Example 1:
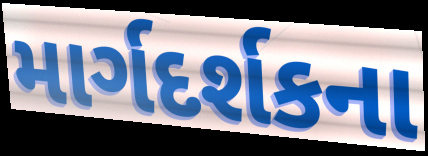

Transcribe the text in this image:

માર્ગદર્શકના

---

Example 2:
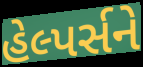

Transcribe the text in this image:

હેલ્પર્સને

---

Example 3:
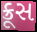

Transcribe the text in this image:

ક્રૂસ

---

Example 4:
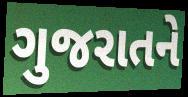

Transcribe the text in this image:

ગુજરાતને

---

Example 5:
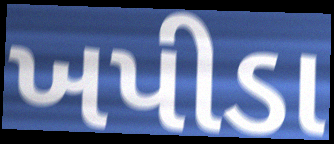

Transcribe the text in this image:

ખપીડા